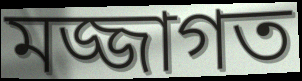
মজ্জাগত